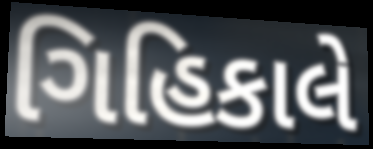
ગિહિકાલે